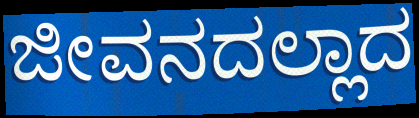
ಜೀವನದಲ್ಲಾದ